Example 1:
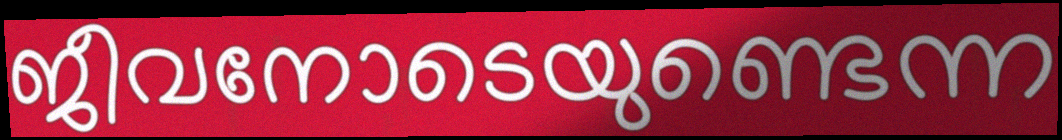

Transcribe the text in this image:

ജീവനോടെയുണ്ടെന്ന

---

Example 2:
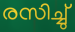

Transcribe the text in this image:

രസിച്ചു്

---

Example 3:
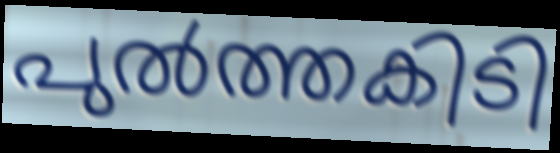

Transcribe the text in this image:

പുൽത്തകിടി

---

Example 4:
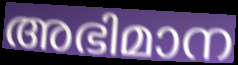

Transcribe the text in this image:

അഭിമാന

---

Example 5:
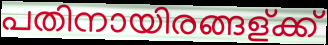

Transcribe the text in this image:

പതിനായിരങ്ങള്ക്ക്